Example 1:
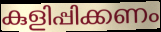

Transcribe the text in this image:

കുളിപ്പിക്കണം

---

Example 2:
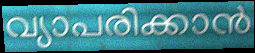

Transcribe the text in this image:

വ്യാപരിക്കാൻ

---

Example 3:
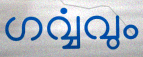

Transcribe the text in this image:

ഗൎവ്വവും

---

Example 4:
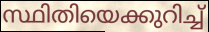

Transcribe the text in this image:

സ്ഥിതിയെക്കുറിച്ച്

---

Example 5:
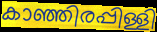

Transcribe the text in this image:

കാഞ്ഞിരപ്പിള്ളി